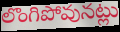
లొంగిపోవునట్లు